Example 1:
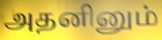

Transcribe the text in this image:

அதனினும்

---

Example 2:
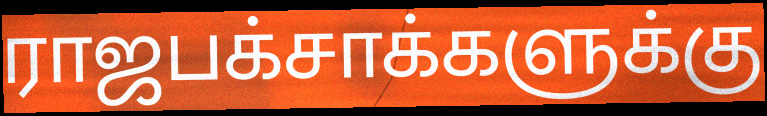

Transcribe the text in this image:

ராஜபக்சாக்களுக்கு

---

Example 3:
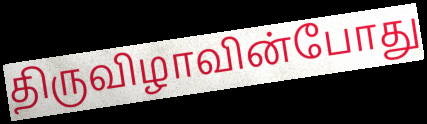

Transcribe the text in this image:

திருவிழாவின்போது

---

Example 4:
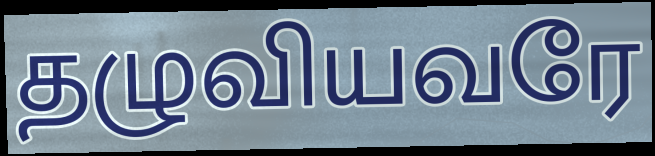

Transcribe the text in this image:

தழுவியவரே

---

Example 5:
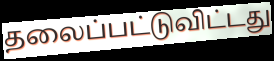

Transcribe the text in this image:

தலைப்பட்டுவிட்டது